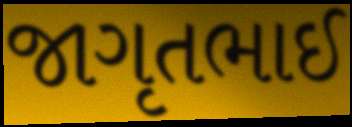
જાગૃતભાઈ